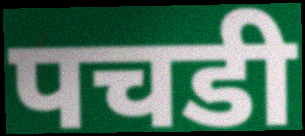
पचडी